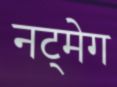
नट्मेग